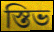
স্তিভ